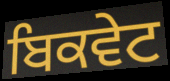
ਬਿਕਵੇਟ